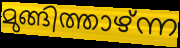
മുങ്ങിത്താഴ്ന്ന